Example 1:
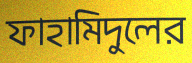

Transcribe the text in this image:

ফাহামিদুলের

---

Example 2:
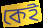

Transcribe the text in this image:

কেই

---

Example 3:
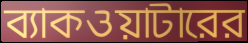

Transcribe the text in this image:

ব্যাকওয়াটারের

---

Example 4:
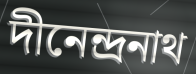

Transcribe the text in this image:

দীনেন্দ্রনাথ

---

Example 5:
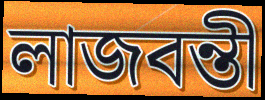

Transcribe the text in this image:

লাজবন্তী